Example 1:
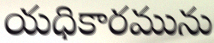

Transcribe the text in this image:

యధికారమును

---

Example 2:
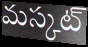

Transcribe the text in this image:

మస్కట్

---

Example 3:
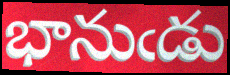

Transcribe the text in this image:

భానుఁడు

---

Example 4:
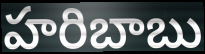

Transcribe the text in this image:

హరిబాబు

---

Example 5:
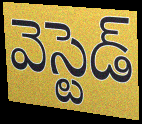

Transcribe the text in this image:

వెస్టెడ్